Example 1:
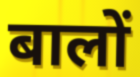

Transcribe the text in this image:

बालों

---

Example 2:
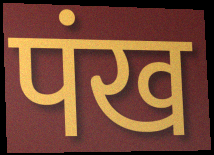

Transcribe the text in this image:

पंख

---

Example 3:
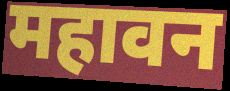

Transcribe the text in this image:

महावन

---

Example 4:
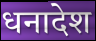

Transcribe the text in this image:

धनादेश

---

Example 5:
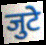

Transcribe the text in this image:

जुटे